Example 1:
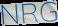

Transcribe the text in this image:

NRG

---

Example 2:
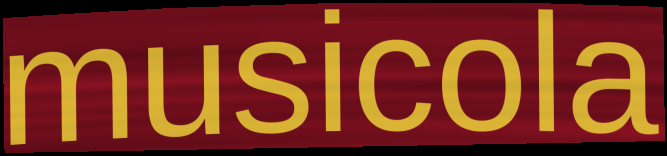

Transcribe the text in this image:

musicola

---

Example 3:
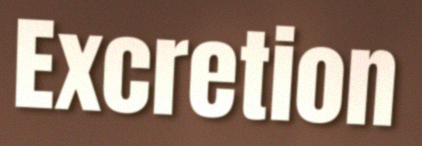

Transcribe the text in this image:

Excretion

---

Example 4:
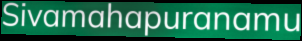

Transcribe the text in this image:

Sivamahapuranamu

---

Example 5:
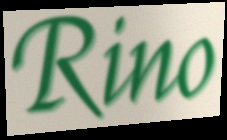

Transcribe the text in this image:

Rino